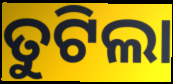
ତୁଟିଲା